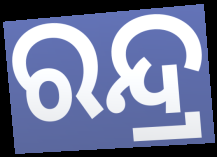
ରନ୍ଦ୍ର